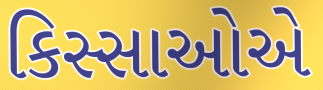
કિસ્સાઓએ